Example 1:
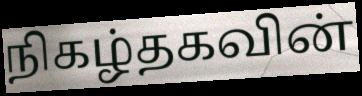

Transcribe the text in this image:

நிகழ்தகவின்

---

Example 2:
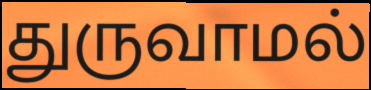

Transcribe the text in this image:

துருவாமல்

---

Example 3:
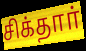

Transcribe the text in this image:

சிக்தார்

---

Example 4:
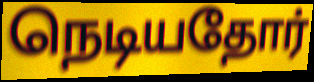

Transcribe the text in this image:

நெடியதோர்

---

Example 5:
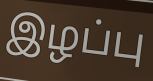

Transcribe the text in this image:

இழப்பு